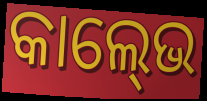
କାଲ୍‍ଭେ